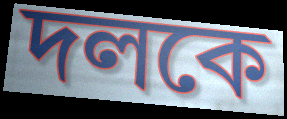
দলকে